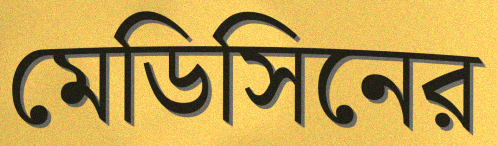
মেডিসিনের